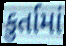
કુર્તામાં